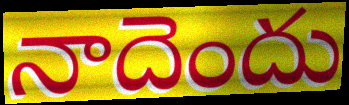
నాదెందు